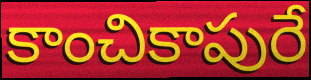
కాంచికాపురే